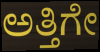
ಅತ್ತಿಗೇ